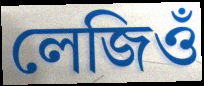
লেজিওঁ